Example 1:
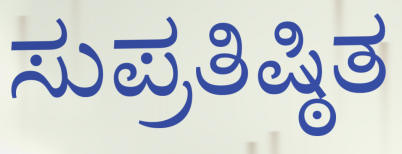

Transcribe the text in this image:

ಸುಪ್ರತಿಷ್ಠಿತ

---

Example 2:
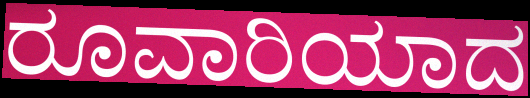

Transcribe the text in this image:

ರೂವಾರಿಯಾದ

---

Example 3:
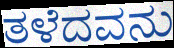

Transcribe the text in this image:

ತಳೆದವನು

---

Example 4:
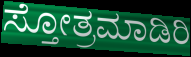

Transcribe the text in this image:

ಸ್ತೋತ್ರಮಾಡಿರಿ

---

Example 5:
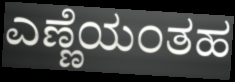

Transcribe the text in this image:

ಎಣ್ಣೆಯಂತಹ